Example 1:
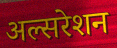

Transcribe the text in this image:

अल्सरेशन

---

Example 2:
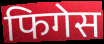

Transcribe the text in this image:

फिगेस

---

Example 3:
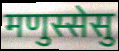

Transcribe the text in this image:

मणुस्सेसु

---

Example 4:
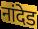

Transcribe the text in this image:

नांदेड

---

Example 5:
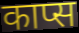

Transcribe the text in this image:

काप्स